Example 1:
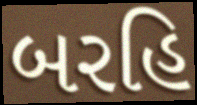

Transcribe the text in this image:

બરહિ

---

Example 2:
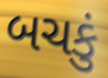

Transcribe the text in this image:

બચકું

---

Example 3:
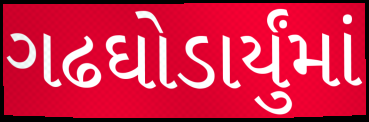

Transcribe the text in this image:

ગઢઘોડાર્યુંમાં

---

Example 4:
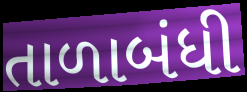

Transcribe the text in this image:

તાળાબંધી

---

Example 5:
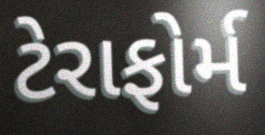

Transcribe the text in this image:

ટેરાફોર્મ